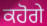
ਕਹੋਗੇ